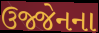
ઉજ્જેનના